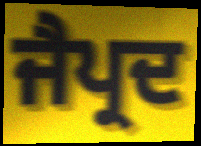
ਜੈਪ੍ਰਦ